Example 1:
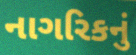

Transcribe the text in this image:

નાગરિકનું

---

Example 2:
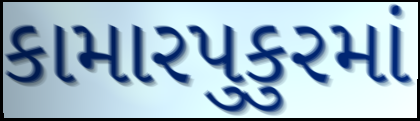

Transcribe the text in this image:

કામારપુકુરમાં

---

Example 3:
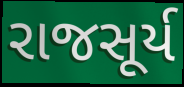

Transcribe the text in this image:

રાજસૂર્ય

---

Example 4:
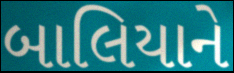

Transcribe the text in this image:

બાલિયાને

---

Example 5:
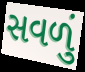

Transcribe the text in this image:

સવળું